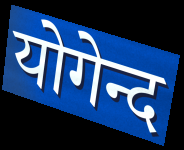
योगेन्द